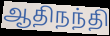
ஆதிநந்தி